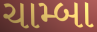
ચામ્બા